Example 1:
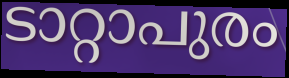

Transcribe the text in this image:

ടാറ്റാപുരം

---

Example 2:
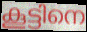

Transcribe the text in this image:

കൂട്ടിനെ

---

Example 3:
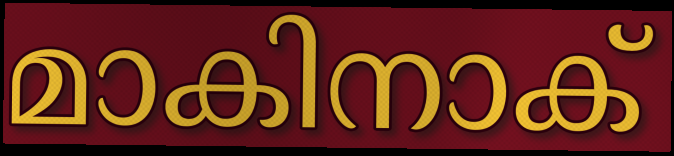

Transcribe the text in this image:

മാകിനാക്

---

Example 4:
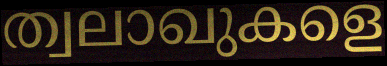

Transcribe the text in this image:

ത്വലാഖുകളെ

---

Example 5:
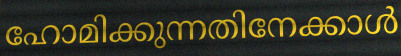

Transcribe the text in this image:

ഹോമിക്കുന്നതിനേക്കാൾ